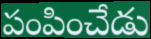
పంపించేడు